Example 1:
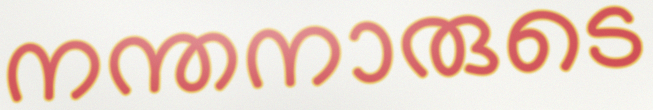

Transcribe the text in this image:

നന്തനാരുടെ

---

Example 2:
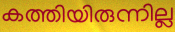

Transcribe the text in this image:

കത്തിയിരുന്നില്ല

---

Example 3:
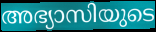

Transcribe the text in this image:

അഭ്യാസിയുടെ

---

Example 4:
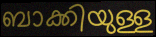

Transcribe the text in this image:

ബാക്കിയുള്ള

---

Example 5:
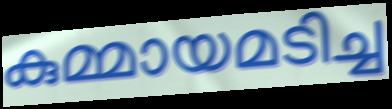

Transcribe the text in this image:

കുമ്മായമടിച്ച